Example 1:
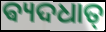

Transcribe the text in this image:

ଵ୍ୟଦଧାତ୍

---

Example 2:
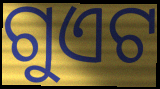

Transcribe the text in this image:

ଗୁଏଟ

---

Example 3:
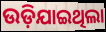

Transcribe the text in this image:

ଉଡ଼ିଯାଇଥିଲା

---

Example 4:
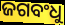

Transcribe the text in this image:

ଜଗବଂଧୁ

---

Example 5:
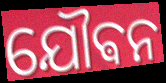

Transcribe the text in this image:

ଯୌଵନ